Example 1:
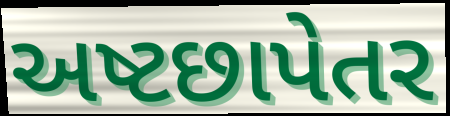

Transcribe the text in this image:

અષ્ટછાપેતર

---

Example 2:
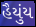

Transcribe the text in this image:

હૈયુંય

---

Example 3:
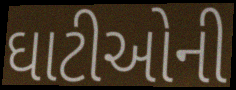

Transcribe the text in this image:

ઘાટીઓની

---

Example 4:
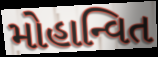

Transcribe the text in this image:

મોહાન્વિત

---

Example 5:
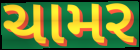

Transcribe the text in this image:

ચામર